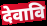
देवावि